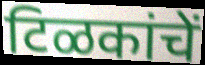
टिळकांचें